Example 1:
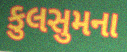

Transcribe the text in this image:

કુલસુમના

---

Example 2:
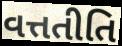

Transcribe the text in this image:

વત્તતીતિ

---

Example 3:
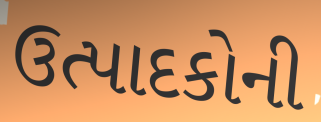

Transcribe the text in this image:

ઉત્પાદકોની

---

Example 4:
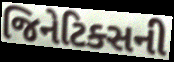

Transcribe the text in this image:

જિનેટિક્સની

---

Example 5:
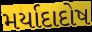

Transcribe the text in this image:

મર્યાદાદોષ